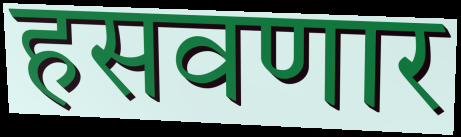
हसवणार